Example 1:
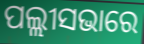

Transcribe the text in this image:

ପଲ୍ଲୀସଭାରେ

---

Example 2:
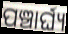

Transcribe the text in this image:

ପଞ୍ଚାର୍ଘ୍ୟ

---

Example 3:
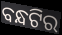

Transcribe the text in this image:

ବନ୍ଧଟିର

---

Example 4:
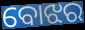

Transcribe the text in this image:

ବୋଝର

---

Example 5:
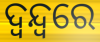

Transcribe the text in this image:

ଦ୍ୱନ୍ଦ୍ବରେ